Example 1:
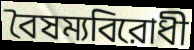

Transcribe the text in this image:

বৈষম্যবিরোধী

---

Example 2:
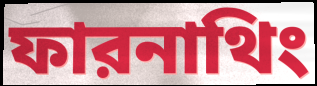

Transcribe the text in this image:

ফারনাথিং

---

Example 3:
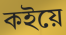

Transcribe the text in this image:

কইয়ে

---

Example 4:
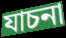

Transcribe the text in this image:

যাচনা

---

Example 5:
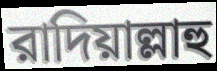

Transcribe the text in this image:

রাদিয়াল্লাহু